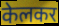
केलकर